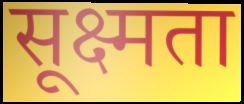
सूक्ष्मता